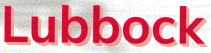
Lubbock